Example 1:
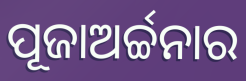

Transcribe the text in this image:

ପୂଜାଅର୍ଚ୍ଚନାର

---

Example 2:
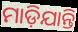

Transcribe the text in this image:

ମାଡ଼ିଯାନ୍ତି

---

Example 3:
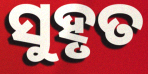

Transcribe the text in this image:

ସୁହୃତ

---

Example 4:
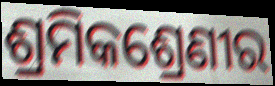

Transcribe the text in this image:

ଶ୍ରମିକଶ୍ରେଣୀର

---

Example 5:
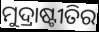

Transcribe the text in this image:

ମୁଦ୍ରାଷ୍ଟୀତିର